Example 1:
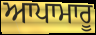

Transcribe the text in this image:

ਆਪਾਮਾਰੂ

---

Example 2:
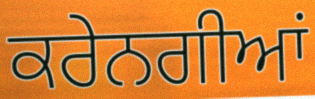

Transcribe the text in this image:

ਕਰੇਨਗੀਆਂ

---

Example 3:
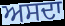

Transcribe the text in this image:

ਅਸਦਾ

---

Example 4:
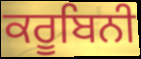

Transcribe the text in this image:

ਕਰੂਬਿਨੀ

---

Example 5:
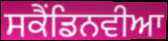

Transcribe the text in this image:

ਸਕੈਂਡਿਨਵੀਆ